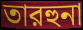
তারহুনা